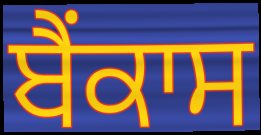
ਬੈਂਕਾਸ